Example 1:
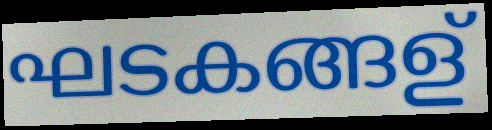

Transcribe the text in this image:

ഘടകങ്ങള്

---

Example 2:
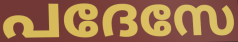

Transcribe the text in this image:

പദേസേ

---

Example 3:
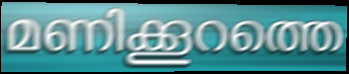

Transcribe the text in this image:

മണിക്കൂറത്തെ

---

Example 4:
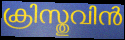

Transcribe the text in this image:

ക്രിസ്തുവിൻ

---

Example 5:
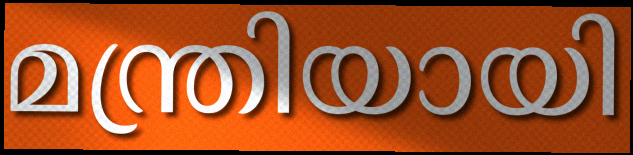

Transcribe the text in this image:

മന്ത്രിയായി